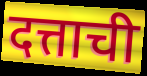
दत्ताची